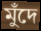
মুঁদে